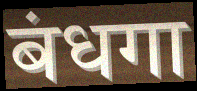
बंधगा